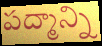
పద్మాన్ని